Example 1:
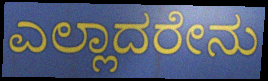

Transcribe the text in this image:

ಎಲ್ಲಾದರೇನು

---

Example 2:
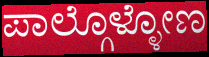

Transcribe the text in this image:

ಪಾಲ್ಗೊಳ್ಳೋಣ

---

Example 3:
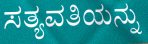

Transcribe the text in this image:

ಸತ್ಯವತಿಯನ್ನು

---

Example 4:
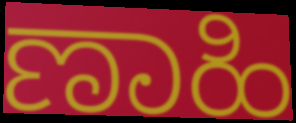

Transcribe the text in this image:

ಣಾಹಿ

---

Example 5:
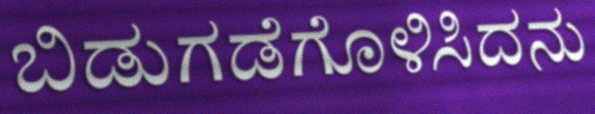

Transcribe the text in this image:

ಬಿಡುಗಡೆಗೊಳಿಸಿದನು